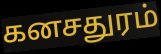
கனசதுரம்